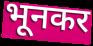
भूनकर